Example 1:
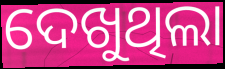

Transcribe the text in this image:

ଦେଖୁଥିଲା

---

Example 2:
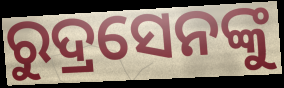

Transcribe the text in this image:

ରୁଦ୍ରସେନଙ୍କୁ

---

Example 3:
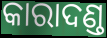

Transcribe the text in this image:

କାରାଦଣ୍ଡ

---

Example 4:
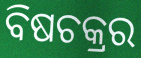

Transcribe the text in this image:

ବିଷଚକ୍ରର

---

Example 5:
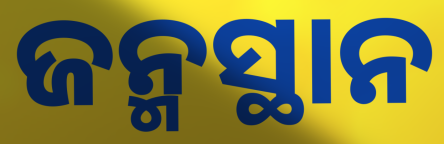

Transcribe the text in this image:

ଜନ୍ମସ୍ଥାନ